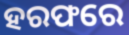
ହରଫରେ